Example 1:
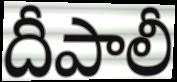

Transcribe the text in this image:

దీపాలీ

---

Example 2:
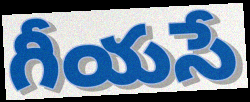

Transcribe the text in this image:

గీయసే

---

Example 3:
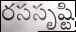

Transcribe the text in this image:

రససృష్టి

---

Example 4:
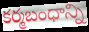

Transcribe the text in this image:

కర్మబంధాన్ని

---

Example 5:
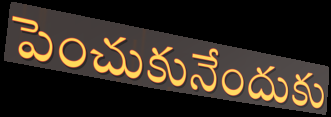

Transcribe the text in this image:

పెంచుకునేందుకు